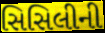
સિસિલીની